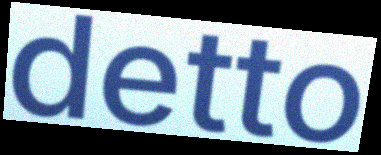
detto